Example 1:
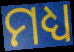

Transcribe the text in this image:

ମଧ୍ୟ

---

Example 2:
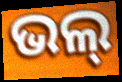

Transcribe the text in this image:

ଭଲ୍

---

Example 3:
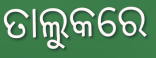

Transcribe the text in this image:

ତାଲୁକରେ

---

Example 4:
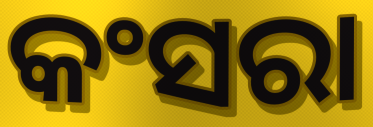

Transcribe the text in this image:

କଂସରା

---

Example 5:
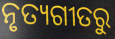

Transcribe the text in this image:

ନୃତ୍ୟଗୀତରୁ